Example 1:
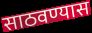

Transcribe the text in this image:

साठवण्यास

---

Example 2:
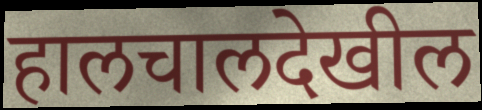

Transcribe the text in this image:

हालचालदेखील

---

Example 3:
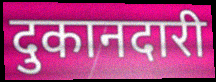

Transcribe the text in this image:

दुकानदारी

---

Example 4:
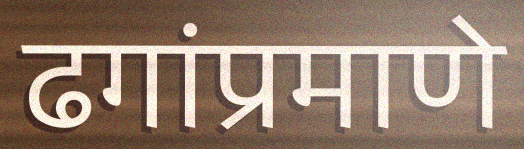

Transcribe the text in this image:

ढगांप्रमाणे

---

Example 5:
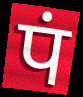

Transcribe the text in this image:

पं